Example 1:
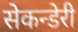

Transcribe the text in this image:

सेकन्डेरी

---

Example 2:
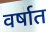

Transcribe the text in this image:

वर्षात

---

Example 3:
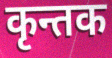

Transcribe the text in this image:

कृन्तक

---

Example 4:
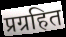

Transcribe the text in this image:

प्रग्रहित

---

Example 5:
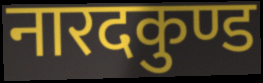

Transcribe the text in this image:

नारदकुण्ड